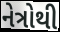
નેત્રોથી